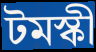
টমস্কী